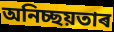
অনিচ্ছয়তাৰ